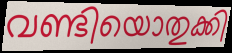
വണ്ടിയൊതുക്കി